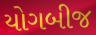
યોગબીજ